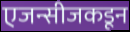
एजन्सीजकडून